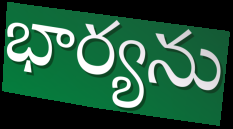
భార్యను